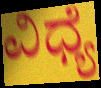
ವಿಧ್ಯೆ